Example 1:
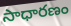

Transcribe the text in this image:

సాధారణం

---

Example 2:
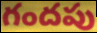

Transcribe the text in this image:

గందపు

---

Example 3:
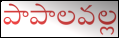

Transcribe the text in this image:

పాపాలవల్ల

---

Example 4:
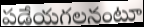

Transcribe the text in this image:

పడేయగలనంటూ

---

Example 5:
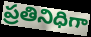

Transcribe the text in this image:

ప్రతినిధిగా